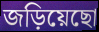
জড়িয়েছো